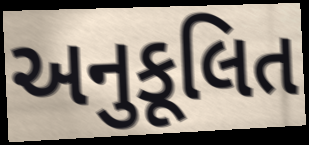
અનુકૂલિત